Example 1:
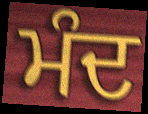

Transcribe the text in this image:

ਮੰਦ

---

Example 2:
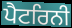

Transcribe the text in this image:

ਪੈਟਰਿਨੀ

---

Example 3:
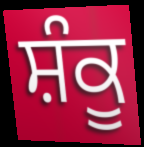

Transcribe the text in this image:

ਸ਼ੰਕੂ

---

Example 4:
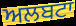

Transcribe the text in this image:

ਅਲਬਟਾ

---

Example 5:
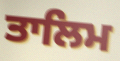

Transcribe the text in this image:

ਤਾਲਿਮ